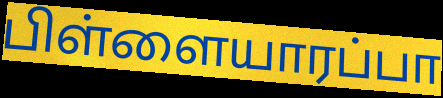
பிள்ளையாரப்பா